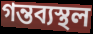
গন্তব্যস্থল